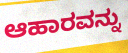
ಆಹಾರವನ್ನು